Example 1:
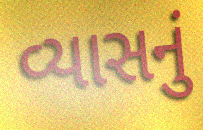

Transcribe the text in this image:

વ્યાસનું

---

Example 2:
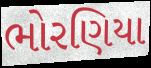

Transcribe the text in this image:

ભોરણિયા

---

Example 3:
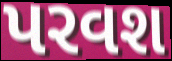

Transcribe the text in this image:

પરવશ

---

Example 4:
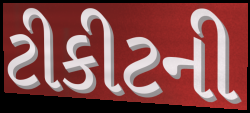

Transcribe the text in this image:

ટીકીટની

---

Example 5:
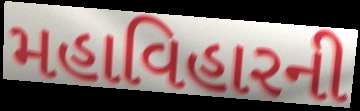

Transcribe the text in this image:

મહાવિહારની